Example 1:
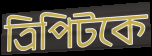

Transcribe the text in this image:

ত্রিপিটকে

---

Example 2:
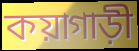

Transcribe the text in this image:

কয়াগাড়ী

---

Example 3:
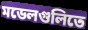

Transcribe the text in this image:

মডেলগুলিতে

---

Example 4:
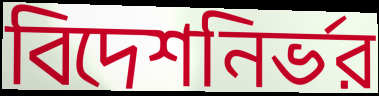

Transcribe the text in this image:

বিদেশনির্ভর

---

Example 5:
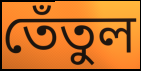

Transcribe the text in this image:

তেঁতুল